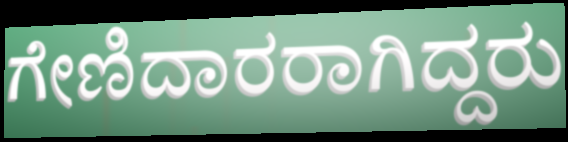
ಗೇಣಿದಾರರಾಗಿದ್ದರು